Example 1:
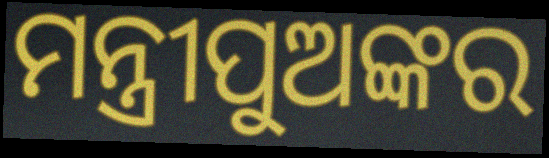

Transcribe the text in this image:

ମନ୍ତ୍ରୀପୁଅଙ୍କର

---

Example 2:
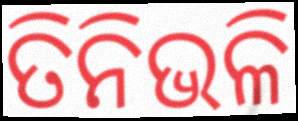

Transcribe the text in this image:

ତିନିଭଳି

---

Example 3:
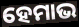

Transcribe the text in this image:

ହେମାଭ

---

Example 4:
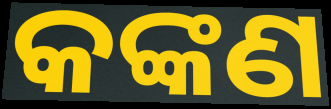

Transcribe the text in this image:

କଙ୍କଣ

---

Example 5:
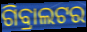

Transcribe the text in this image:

ଗିବ୍ରାଲଟର